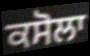
ਕਸੋਲਾ